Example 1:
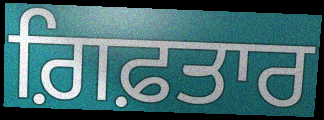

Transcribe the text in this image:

ਗ਼ਿਫ਼ਤਾਰ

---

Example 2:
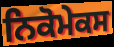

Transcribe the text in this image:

ਨਿਕੋਮੇਕਸ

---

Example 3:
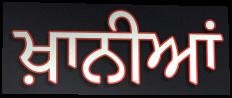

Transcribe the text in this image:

ਖ਼ਾਨੀਆਂ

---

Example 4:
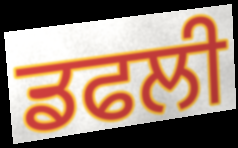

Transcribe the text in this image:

ਡਫਲੀ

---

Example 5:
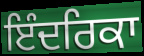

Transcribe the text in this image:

ਇੰਦਰਿਕਾ